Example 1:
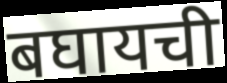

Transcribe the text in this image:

बघायची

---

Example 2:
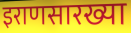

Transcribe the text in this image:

इराणसारख्या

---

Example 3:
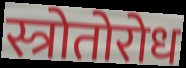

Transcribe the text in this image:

स्त्रोतोरोध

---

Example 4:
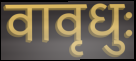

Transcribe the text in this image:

वावृधुः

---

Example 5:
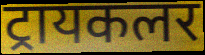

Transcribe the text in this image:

ट्रायकलर